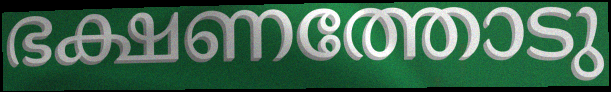
ഭക്ഷണത്തോടു